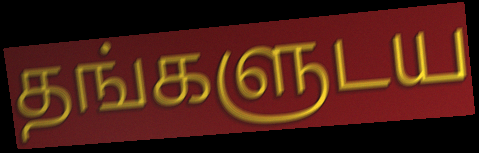
தங்களுடய